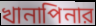
খানাপিনার